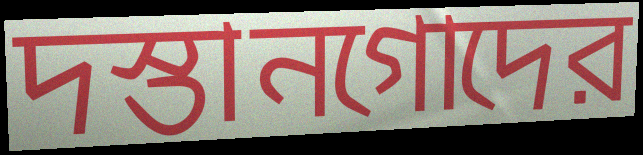
দস্তানগোদের